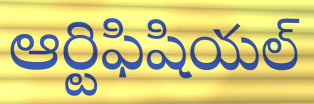
ఆర్టిఫిషియల్